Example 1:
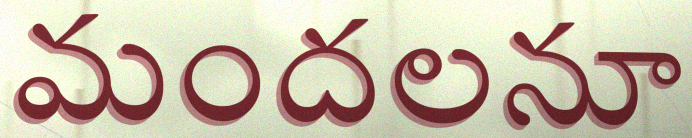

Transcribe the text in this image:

మందలనూ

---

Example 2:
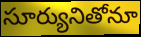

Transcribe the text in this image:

సూర్యునితోనూ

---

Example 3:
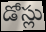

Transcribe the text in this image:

డోస్లు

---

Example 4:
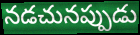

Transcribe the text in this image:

నడచునప్పుడు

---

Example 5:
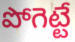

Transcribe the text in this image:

పోగెట్టే